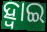
ହ୍ଵାଇ